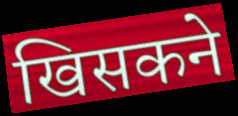
खिसकने